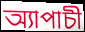
অ্যাপাচী